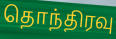
தொந்திரவு